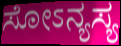
ಸೋಽನ್ಯಸ್ಯ